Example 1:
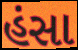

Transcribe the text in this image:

હંસા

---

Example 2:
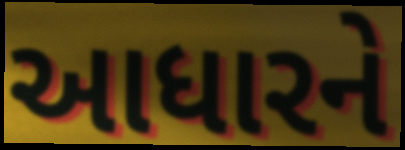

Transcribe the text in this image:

આધારને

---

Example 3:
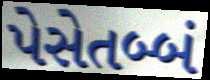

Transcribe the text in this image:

પેસેતબ્બં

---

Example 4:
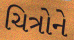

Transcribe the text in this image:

ચિત્રોને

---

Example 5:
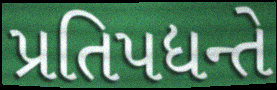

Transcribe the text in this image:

પ્રતિપદ્યન્તે